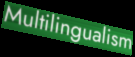
Multilingualism